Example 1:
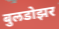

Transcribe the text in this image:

बुलडोझर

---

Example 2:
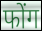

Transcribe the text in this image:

फोंग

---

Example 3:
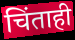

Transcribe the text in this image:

चिंताही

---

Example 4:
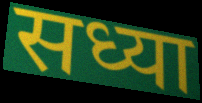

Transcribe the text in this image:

सध्या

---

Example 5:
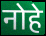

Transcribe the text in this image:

नोहे